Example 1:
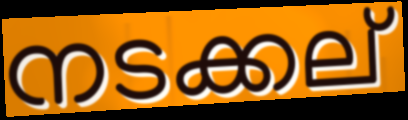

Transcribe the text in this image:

നടക്കല്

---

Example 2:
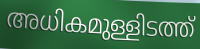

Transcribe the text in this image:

അധികമുള്ളിടത്ത്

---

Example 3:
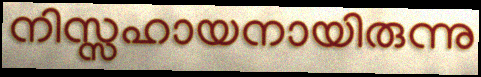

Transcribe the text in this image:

നിസ്സഹായനായിരുന്നു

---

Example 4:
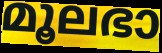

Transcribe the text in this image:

മൂലഭാ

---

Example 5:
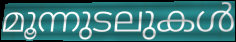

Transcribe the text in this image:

മൂന്നുടലുകൾ